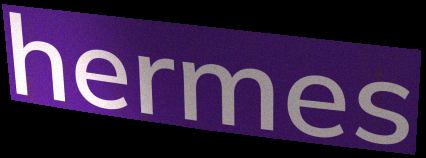
hermes